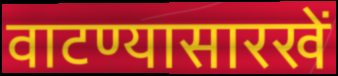
वाटण्यासारखें